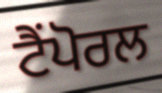
ਟੈਂਪੋਰਲ